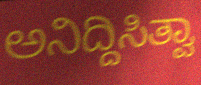
ಅನಿದ್ದಿಸಿತ್ವಾ